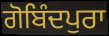
ਗੋਬਿੰਦਪੁਰਾ